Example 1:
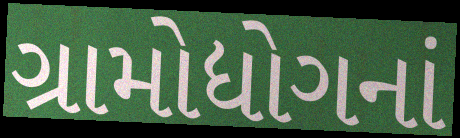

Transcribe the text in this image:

ગ્રામોદ્યોગનાં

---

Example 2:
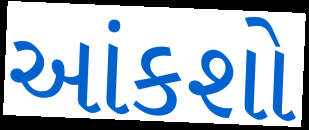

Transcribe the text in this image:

આંકશો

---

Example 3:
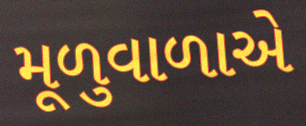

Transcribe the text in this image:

મૂળુવાળાએ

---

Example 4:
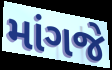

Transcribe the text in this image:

માંગજે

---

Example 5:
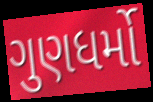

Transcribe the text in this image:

ગુણધર્મો